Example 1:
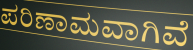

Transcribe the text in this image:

ಪರಿಣಾಮವಾಗಿವೆ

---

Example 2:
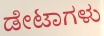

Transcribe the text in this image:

ಡೇಟಾಗಳು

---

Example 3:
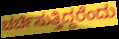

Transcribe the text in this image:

ಚರ್ಚಿಸುತ್ತಿದ್ದರೆಂದು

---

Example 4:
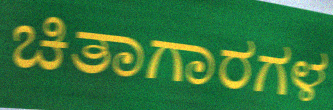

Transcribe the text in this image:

ಚಿತಾಗಾರಗಳ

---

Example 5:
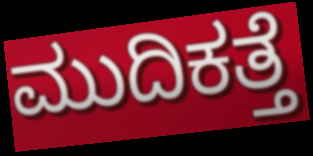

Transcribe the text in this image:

ಮುದಿಕತ್ತೆ